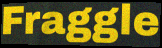
Fraggle